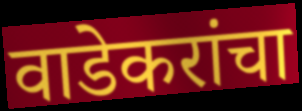
वाडेकरांचा